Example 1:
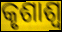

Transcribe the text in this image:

କୃଶାଶ୍ୱ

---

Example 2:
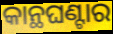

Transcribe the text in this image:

କାନ୍ଥଘଣ୍ଟାର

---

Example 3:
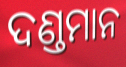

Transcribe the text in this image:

ଦଣ୍ଡମାନ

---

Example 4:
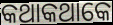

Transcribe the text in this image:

କଥାକଥାକେ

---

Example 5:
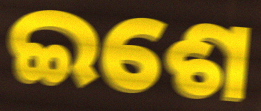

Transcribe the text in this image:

ଇଶେ